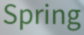
Spring